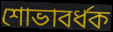
শোভাবর্ধক